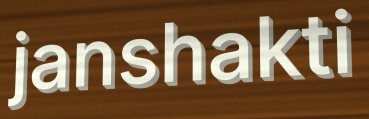
janshakti